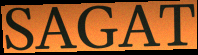
SAGAT